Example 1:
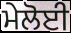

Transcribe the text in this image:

ਮੇਲੋਈ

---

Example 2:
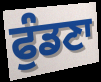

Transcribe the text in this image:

ਫੁੰਡਣਾ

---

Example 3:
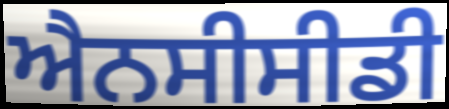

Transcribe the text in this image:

ਐਨਸੀਸੀਡੀ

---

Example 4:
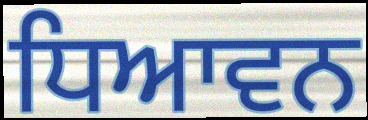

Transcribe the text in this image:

ਧਿਆਵਨ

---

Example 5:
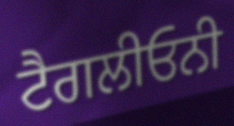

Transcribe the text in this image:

ਟੈਗਲੀਓਨੀ